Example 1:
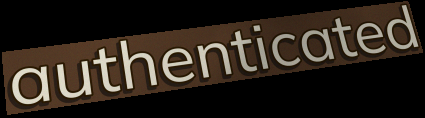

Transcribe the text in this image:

authenticated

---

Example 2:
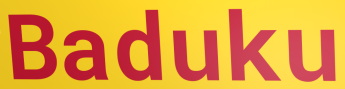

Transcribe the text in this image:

Baduku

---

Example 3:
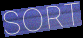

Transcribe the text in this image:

SORT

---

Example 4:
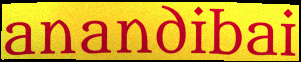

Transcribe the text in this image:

anandibai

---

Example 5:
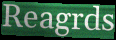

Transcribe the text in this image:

Reagrds